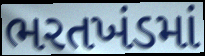
ભરતખંડમાં